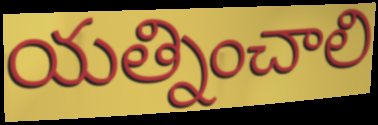
యత్నించాలి